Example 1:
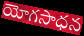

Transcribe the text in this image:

యోగసాధన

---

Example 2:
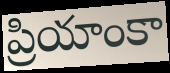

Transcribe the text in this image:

ప్రియాంకా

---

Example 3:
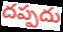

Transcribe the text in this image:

దప్పదు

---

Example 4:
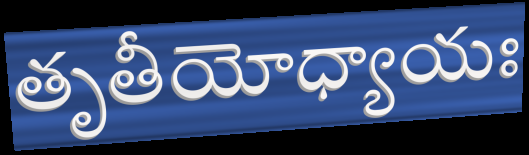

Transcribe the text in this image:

తృతీయోధ్యాయః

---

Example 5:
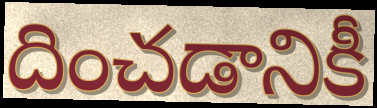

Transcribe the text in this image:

దించడానికీ